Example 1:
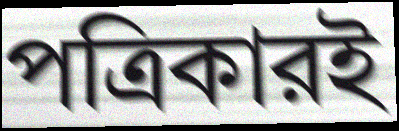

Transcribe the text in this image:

পত্রিকারই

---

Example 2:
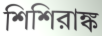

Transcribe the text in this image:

শিশিরাঙ্ক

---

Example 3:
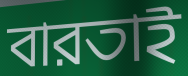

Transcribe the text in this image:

বারতাই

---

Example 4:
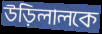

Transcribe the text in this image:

উড়িলালকে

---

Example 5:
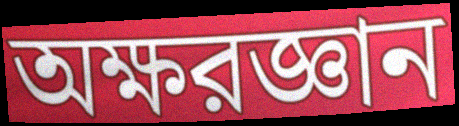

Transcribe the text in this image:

অক্ষরজ্ঞান